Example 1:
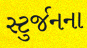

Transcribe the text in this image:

સ્ટુર્જનના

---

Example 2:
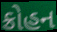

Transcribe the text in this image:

ક્રોહન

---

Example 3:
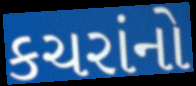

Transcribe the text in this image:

કચરાંનો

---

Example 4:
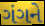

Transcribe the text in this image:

ગંગને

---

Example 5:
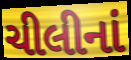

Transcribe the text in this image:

ચીલીનાં